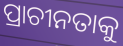
ପ୍ରାଚୀନତାକୁ